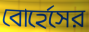
বোর্হেসের